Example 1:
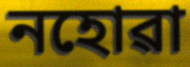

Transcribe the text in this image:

নহোৱা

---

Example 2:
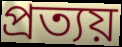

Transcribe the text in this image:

প্ৰত্যয়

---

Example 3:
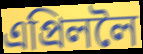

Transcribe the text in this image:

এপ্ৰিললৈ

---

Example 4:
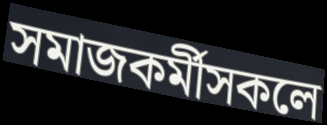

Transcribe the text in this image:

সমাজকৰ্মীসকলে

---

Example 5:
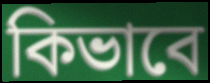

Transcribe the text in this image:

কিভাবে